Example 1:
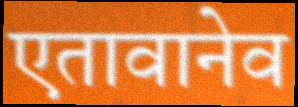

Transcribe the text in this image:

एतावानेव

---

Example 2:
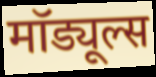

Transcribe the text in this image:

मॉड्यूल्स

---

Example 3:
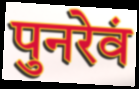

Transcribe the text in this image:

पुनरेवं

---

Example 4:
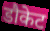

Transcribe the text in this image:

डौकेट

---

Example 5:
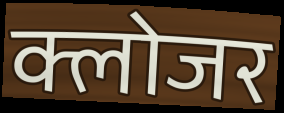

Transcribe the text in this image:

क्लोजर